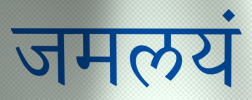
जमलयं